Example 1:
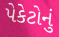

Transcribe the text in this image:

પેકેટોનું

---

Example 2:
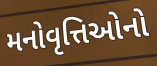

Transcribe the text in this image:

મનોવૃત્તિઓનો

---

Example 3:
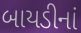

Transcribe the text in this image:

બાયડીનાં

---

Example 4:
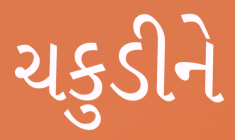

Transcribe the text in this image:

ચકુડીને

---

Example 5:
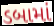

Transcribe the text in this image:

ડબામાં